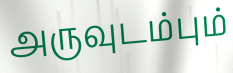
அருவுடம்பும்